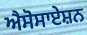
ਐਸੋਸਾਏਸ਼ਨ